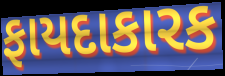
ફાયદાકારક